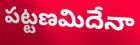
పట్టణమిదేనా